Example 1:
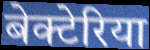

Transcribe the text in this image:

बेक्टेरिया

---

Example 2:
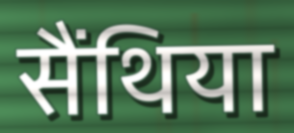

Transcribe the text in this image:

सैंथिया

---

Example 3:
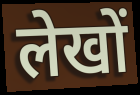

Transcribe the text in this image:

लेखों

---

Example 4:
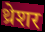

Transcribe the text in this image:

थ्रेशर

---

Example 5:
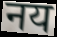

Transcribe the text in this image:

नय